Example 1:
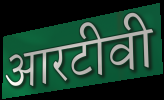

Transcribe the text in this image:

आरटीवी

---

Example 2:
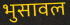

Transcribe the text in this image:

भुसावल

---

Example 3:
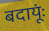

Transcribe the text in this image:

बदायूंः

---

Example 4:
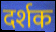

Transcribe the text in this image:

दर्शक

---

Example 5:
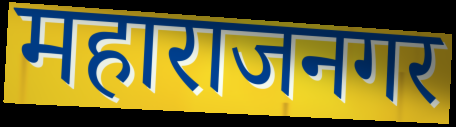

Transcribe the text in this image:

महाराजनगर